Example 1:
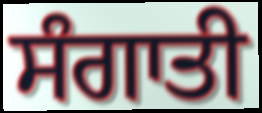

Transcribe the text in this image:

ਸੰਗਾਤੀ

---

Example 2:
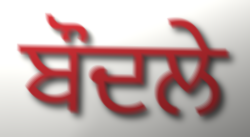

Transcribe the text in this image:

ਬੌਦਲੇ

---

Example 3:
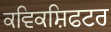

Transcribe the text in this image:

ਕਵਿਕਸ਼ਿਫਟਰ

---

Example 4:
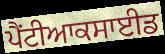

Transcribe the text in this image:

ਪੈਂਟੀਆਕਸਾਈਡ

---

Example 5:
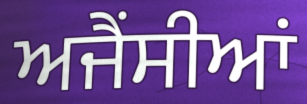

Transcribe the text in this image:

ਅਜੈਂਸੀਆਂ